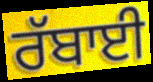
ਰੱਬਾਈ